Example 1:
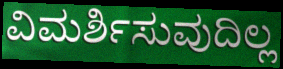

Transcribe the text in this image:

ವಿಮರ್ಶಿಸುವುದಿಲ್ಲ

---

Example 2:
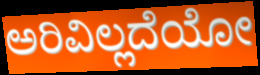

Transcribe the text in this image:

ಅರಿವಿಲ್ಲದೆಯೋ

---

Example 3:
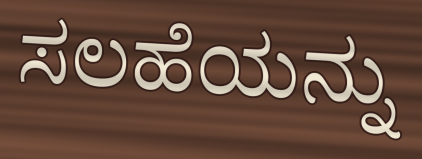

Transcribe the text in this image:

ಸಲಹೆಯನ್ನು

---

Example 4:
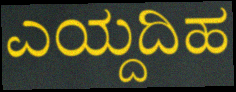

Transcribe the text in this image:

ಎಯ್ದದಿಹ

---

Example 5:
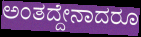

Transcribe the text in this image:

ಅಂತದ್ದೇನಾದರೂ